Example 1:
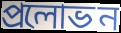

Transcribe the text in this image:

প্ৰলোভন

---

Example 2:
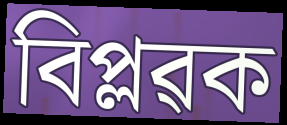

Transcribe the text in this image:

বিপ্লৱক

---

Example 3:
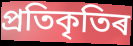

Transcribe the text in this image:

প্ৰতিকৃতিৰ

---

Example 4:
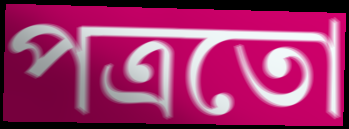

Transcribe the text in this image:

পত্ৰতো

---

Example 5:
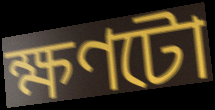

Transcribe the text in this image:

ক্ষণটো